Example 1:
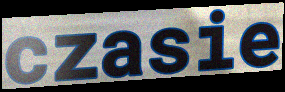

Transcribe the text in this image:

czasie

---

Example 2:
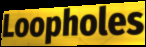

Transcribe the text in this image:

Loopholes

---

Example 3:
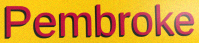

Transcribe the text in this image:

Pembroke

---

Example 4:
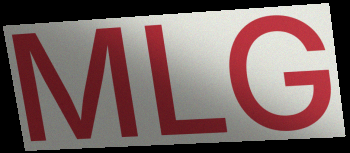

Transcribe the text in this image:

MLG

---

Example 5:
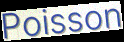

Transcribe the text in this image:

Poisson